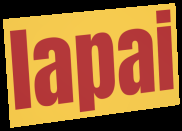
lapai